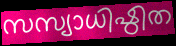
സസ്യാധിഷ്ഠിത